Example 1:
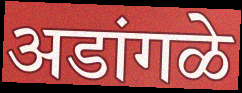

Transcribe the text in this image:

अडांगळे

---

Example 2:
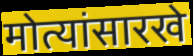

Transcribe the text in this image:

मोत्यांसारखे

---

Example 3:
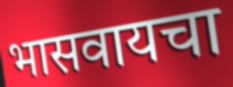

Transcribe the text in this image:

भासवायचा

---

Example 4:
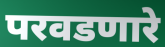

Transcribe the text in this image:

परवडणारे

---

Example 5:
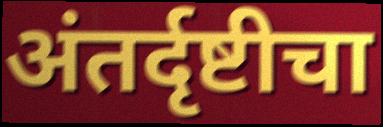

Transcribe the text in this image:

अंतर्दृष्टीचा